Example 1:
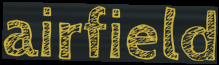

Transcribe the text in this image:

airfield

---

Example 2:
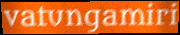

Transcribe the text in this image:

vatungamiri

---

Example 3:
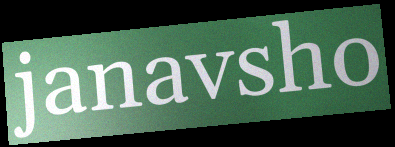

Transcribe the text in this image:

janavsho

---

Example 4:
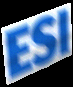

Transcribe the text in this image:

ESI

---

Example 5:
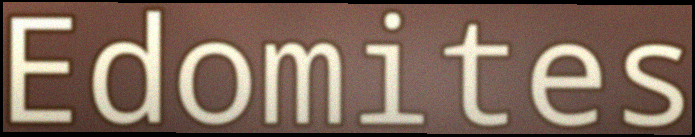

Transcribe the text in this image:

Edomites